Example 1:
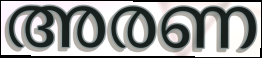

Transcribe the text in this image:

അരണ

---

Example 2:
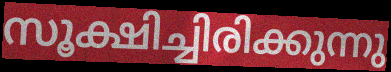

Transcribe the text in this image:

സൂക്ഷിച്ചിരിക്കുന്നു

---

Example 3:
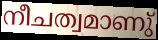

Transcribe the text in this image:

നീചത്വമാണു്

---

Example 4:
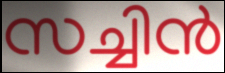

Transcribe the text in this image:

സച്ചിൻ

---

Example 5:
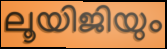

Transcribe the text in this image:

ലൂയിജിയും